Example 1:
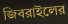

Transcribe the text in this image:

জিবরাইলের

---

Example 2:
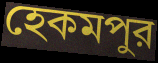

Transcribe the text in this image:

হেকমপুর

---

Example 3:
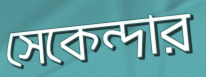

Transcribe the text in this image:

সেকেন্দার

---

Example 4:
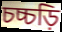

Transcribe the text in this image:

চচ্চড়ি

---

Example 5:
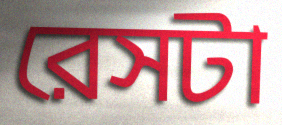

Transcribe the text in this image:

রেসটা